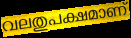
വലതുപക്ഷമാണ്